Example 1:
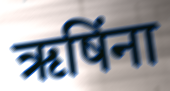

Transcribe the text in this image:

ऋषिंना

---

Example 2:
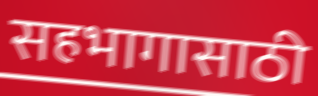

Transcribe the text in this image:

सहभागासाठी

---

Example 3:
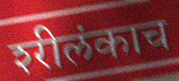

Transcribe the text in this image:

श्रीलंकाच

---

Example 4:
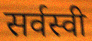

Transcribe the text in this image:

सर्वस्वी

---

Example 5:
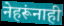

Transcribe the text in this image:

नेहरूंनाही